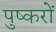
पुष्करों